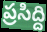
ప్రసిద్ది